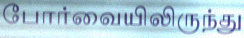
போர்வையிலிருந்து